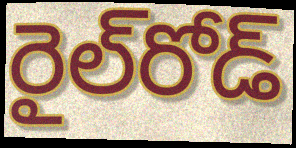
రైల్‌రోడ్